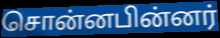
சொன்னபின்னர்